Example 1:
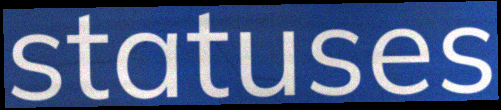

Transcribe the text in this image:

statuses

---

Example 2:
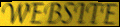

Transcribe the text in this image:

WEBSITE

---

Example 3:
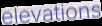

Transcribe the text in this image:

elevations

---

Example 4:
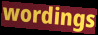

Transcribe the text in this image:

wordings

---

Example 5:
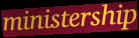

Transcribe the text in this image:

ministership